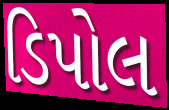
ડિપોલ